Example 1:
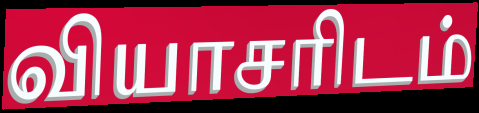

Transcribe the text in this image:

வியாசரிடம்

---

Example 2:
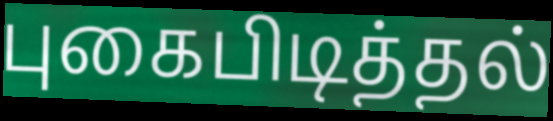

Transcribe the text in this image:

புகைபிடித்தல்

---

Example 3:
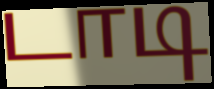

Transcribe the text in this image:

டாடி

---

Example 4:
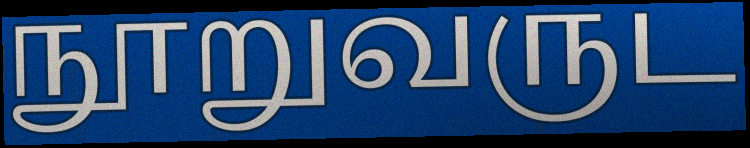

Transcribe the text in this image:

நூறுவருட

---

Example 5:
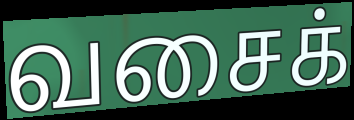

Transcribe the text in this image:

வசைக்